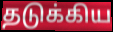
தடுக்கிய